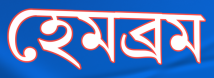
হেমব্রম